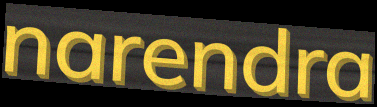
narendra